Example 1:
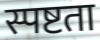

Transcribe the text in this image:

स्पष्टता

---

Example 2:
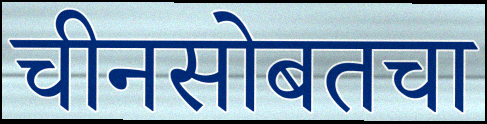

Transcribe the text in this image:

चीनसोबतचा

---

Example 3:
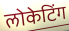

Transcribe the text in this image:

लोकेटिंग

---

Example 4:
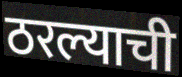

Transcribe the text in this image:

ठरल्याची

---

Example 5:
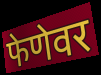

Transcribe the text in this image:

फेणेवर